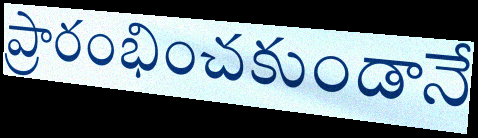
ప్రారంభించకుండానే